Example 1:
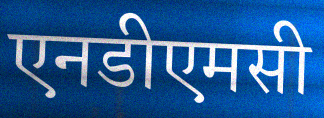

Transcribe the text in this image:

एनडीएमसी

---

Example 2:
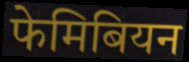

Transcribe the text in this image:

फेमिबियन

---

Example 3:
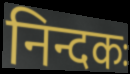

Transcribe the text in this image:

निन्दकः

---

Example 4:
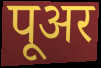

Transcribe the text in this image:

पूअर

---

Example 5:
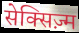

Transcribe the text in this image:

सेक्सिज़्म